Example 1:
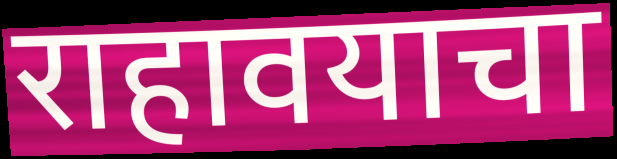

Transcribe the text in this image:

राहावयाचा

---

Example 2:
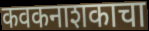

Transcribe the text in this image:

कवकनाशकाचा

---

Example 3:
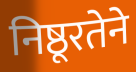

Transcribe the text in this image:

निष्ठूरतेने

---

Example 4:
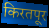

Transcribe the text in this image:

किरतपूर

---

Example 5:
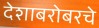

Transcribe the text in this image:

देशाबरोबरचे